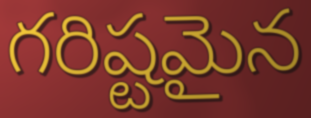
గరిష్టమైన